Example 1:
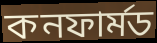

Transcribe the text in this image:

কনফার্মড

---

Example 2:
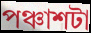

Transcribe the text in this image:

পঞ্চাশটা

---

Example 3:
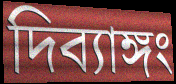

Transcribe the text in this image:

দিব্যাঙ্গং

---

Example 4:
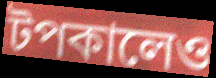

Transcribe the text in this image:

টপকালেও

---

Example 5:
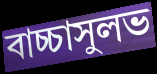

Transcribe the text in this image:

বাচ্চাসুলভ